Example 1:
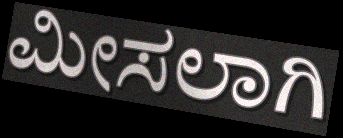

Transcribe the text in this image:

ಮೀಸಲಾಗಿ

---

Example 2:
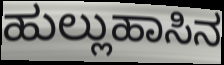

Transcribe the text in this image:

ಹುಲ್ಲುಹಾಸಿನ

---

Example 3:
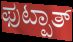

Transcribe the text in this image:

ಫುಟ್ಪಾತ್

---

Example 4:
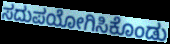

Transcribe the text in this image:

ಸದುಪಯೋಗಿಸಿಕೊಂಡು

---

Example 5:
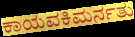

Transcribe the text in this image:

ಕಾಯವಕಿಮರ್ನತು